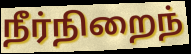
நீர்நிறைந்